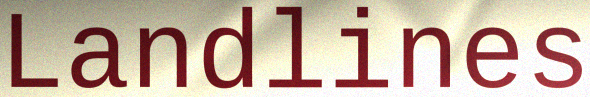
Landlines